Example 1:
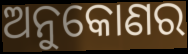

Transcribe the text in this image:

ଅନୁକୋଣର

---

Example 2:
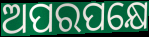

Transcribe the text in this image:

ଅପରପକ୍ଷେ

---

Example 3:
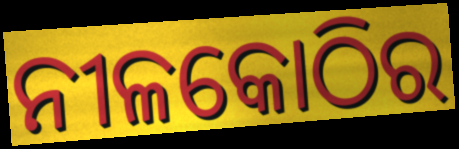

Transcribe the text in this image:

ନୀଳକୋଠିର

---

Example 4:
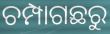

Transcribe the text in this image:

ଚମ୍ପାଗଛରୁ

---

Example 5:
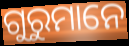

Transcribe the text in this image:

ଗୁରୁମାନେ